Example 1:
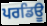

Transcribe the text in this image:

ਪਰਡਿਊ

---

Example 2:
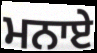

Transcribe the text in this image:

ਮਨਾਏ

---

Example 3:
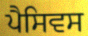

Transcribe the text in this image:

ਪੈਸਿਵਸ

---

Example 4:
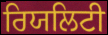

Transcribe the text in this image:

ਰਿਯਲਿਟੀ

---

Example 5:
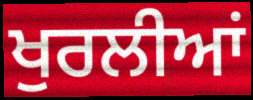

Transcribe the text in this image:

ਖੁਰਲੀਆਂ